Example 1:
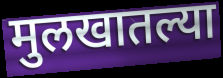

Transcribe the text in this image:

मुलखातल्या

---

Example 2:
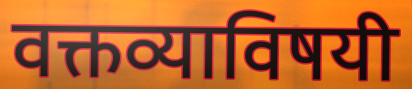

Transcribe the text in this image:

वक्तव्याविषयी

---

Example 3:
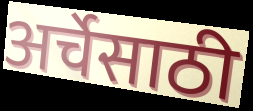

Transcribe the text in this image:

अर्चेसाठी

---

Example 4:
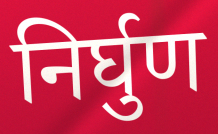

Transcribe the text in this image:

निर्घुण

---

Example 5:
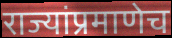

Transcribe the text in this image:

राज्यांप्रमाणेच